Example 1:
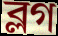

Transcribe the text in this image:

ব্লগ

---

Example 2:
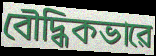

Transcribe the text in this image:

বৌদ্ধিকভাৱে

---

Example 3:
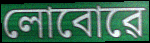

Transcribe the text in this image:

লোবোৱে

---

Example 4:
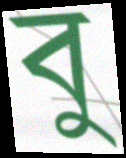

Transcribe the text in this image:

বু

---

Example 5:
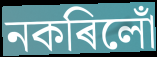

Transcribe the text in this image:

নকৰিলোঁ